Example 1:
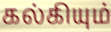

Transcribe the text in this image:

கல்கியும்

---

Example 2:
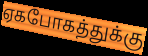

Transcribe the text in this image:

ஏகபோகத்துக்கு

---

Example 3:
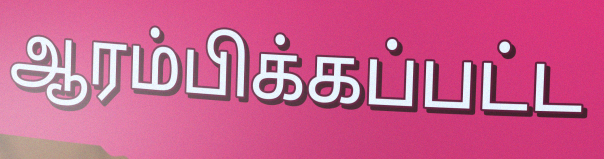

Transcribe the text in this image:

ஆரம்பிக்கப்பட்ட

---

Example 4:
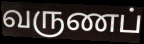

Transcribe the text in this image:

வருணப்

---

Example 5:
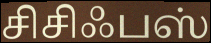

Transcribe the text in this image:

சிசிஃபஸ்